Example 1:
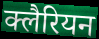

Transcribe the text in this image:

क्लैरियन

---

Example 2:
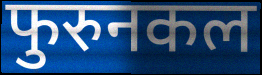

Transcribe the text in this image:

फुरुनकल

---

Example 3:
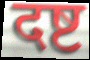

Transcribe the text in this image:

दष्ट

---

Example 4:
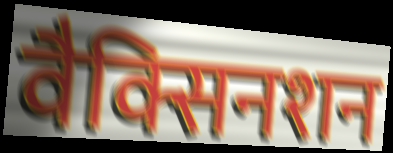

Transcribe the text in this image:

वैक्सिनशन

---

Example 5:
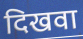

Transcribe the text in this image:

दिखवा